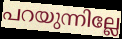
പറയുന്നില്ലേ